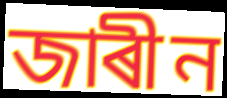
জাৰীন